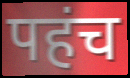
पहंच